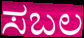
ಸಬಲ